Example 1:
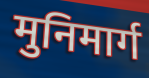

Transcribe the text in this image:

मुनिमार्ग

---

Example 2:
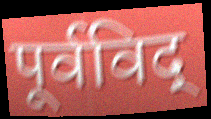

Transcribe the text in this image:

पूर्वविद्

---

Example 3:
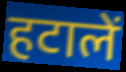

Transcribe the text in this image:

हटालें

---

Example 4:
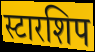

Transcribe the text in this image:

स्टारशिप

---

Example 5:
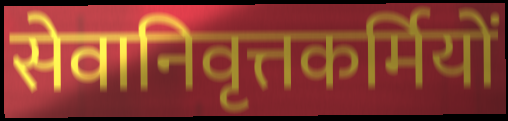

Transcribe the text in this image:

सेवानिवृत्तकर्मियों